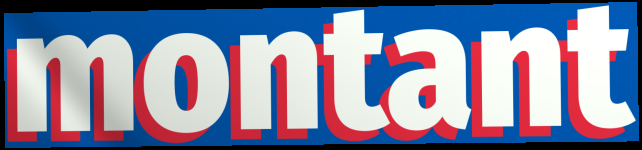
montant